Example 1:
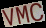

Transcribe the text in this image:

VMC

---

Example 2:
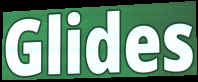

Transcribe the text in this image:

Glides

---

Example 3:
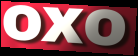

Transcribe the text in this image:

oxo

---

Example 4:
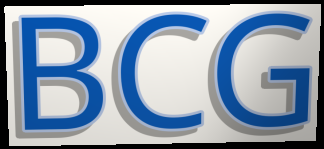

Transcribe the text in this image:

BCG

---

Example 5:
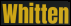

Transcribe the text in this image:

Whitten